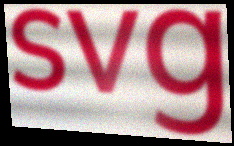
svg